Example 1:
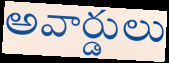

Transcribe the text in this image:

అవార్డులు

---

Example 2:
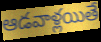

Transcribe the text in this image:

ఆడవాళ్లయితే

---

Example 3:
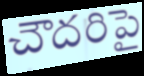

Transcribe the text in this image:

చౌదరిపై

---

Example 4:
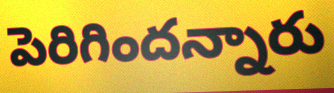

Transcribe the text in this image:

పెరిగిందన్నారు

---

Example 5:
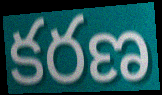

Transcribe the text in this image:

కరణ